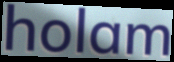
holam